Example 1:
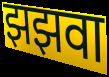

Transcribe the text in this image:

झझवा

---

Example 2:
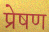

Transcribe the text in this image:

प्रेषण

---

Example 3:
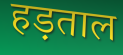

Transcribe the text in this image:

हड़ताल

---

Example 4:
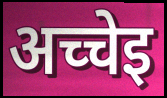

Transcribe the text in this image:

अच्चेइ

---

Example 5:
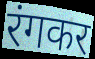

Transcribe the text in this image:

रंगकर